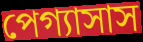
পেগ্যাসাস